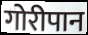
गोरीपान